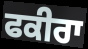
ਫਕੀਰਾ